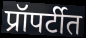
प्रॉपर्टीत